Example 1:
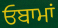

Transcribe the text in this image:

ਓਬਾਮਾਂ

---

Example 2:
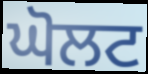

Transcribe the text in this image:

ਘੋਲਟ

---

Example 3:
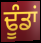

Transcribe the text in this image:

ਢੂੰਡਾਂ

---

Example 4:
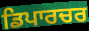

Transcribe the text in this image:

ਡਿਪਾਰਚਰ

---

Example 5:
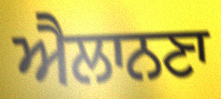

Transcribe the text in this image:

ਐਲਾਨਣਾ